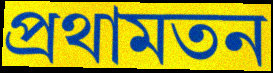
প্রথামতন